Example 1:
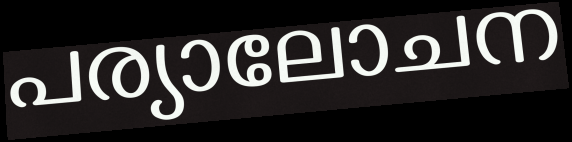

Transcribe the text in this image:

പര്യാലോചന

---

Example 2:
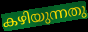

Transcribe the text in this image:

കഴിയുന്നതു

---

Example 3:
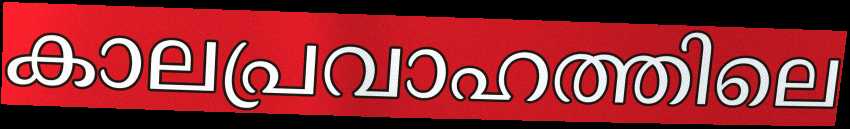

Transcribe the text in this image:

കാലപ്രവാഹത്തിലെ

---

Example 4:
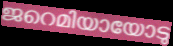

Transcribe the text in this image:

ജറെമിയായോടു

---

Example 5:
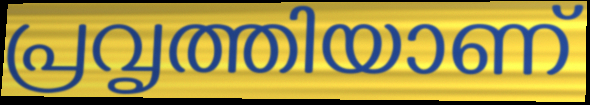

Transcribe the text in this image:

പ്രവൃത്തിയാണ്